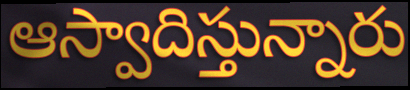
ఆస్వాదిస్తున్నారు